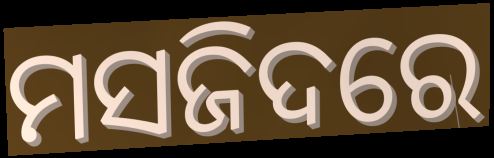
ମସଜିଦରେ